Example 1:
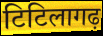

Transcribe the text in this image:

टिटिलागढ़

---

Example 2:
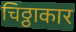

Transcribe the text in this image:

चिठ्ठाकार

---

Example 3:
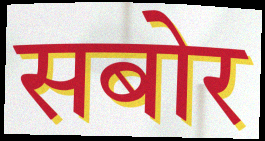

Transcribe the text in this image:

सबोर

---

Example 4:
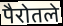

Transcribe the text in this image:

पैरोतले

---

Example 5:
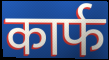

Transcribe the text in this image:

कार्फ